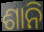
ଶାନି